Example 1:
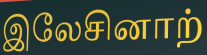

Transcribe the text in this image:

இலேசினாற்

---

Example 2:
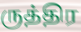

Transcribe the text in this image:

ருத்திர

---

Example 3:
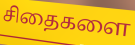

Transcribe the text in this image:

சிதைகளை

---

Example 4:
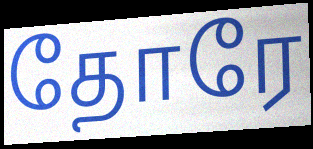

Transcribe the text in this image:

தோரே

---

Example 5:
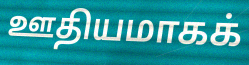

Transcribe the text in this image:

ஊதியமாகக்